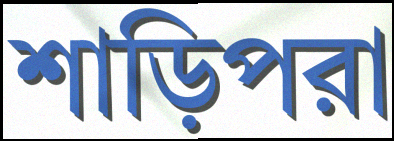
শাড়িপরা